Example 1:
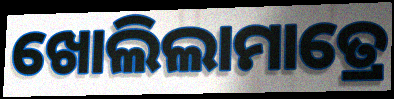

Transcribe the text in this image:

ଖୋଲିଲାମାତ୍ରେ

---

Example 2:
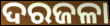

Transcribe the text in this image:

ଦରଜଳା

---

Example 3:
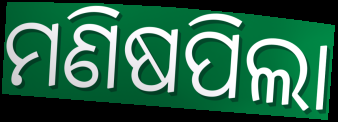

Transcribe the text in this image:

ମଣିଷପିଲା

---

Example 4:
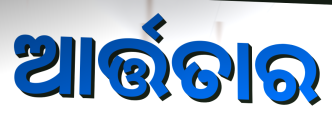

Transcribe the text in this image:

ଆର୍ତ୍ତତାର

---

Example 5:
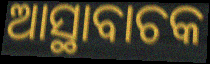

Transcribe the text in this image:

ଆସ୍ଥାବାଚକ